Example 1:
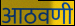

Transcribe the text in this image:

आठवणी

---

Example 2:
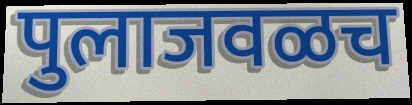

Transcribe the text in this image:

पुलाजवळच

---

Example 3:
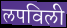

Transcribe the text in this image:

लपविली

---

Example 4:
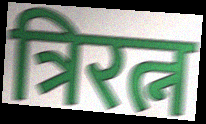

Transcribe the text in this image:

त्रिरत्न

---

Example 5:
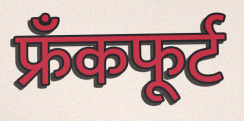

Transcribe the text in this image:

फ्रँकफूर्ट